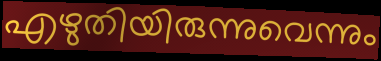
എഴുതിയിരുന്നുവെന്നും